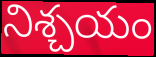
నిశ్చయం